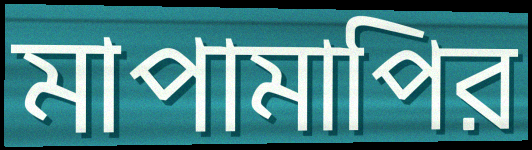
মাপামাপির